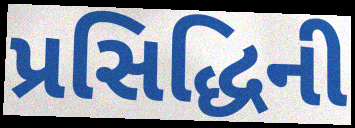
પ્રસિદ્ધિની